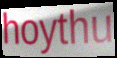
hoythu